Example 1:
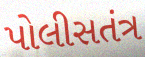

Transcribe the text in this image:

પોલીસતંત્ર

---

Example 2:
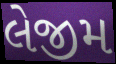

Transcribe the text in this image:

લેજીમ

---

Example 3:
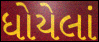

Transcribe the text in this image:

ધોયેલાં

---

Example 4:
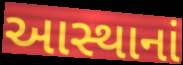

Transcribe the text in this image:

આસ્થાનાં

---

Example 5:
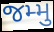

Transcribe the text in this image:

જમ્મુ